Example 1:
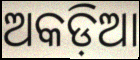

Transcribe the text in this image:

ଅକଡ଼ିଆ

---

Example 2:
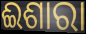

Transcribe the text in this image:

ଈଶାରା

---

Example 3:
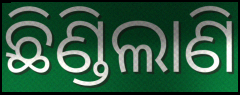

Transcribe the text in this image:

ଛିଣ୍ଡିଲାଣି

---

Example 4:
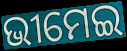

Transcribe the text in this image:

ଭୀମେଇ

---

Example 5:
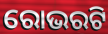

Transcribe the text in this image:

ରୋଭରଟି